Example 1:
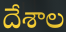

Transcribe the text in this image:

దేశాల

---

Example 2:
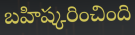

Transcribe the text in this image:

బహిష్కరించింది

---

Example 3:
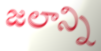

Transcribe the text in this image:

జలాన్ని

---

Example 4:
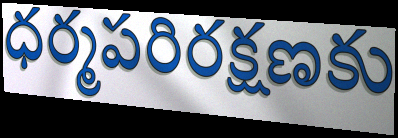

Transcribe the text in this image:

ధర్మపరిరక్షణకు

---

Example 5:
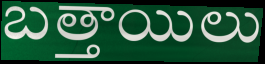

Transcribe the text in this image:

బత్తాయిలు